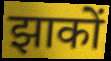
झाकों